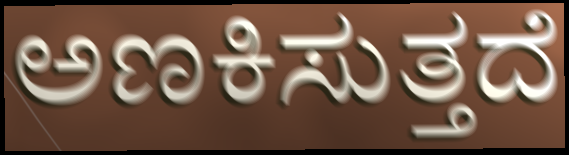
ಅಣಕಿಸುತ್ತದೆ